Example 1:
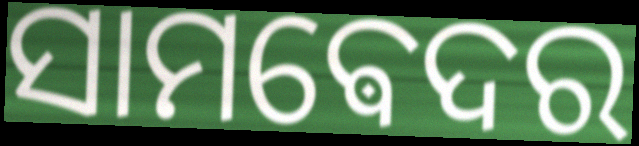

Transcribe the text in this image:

ସାମଵେଦର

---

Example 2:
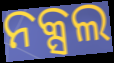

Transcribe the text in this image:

ନକ୍ସଲ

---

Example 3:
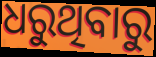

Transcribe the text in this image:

ଧରୁଥିବାରୁ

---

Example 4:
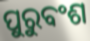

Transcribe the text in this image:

ପୁରୁବଂଶ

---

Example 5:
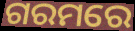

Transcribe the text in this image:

ଗରମରେ